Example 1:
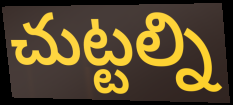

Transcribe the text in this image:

చుట్టల్ని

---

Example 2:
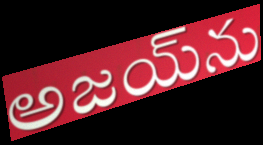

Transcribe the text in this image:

అజయ్‌ను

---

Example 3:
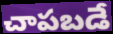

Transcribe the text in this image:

చాపబడే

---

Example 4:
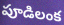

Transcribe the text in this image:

పూడిలంక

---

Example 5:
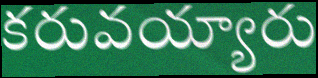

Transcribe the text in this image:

కరువయ్యారు